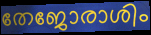
തേജോരാശിം